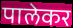
पालेकर